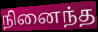
நினைந்த